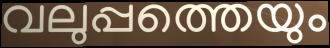
വലുപ്പത്തെയും